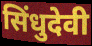
सिंधुदेवी